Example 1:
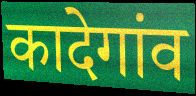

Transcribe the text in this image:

कादेगांव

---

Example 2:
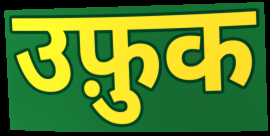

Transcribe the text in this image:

उफ़ुक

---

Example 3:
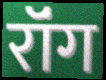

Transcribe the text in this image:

रॉंग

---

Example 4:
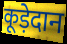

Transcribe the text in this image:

कूड़ेदान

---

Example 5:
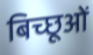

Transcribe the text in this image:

बिच्छूओं